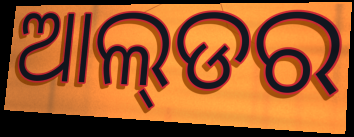
ଆଲ୍‌ଡର